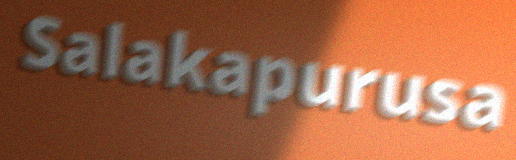
Salakapurusa